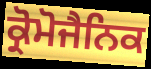
ਕ੍ਰੋਮੋਜੈਨਿਕ